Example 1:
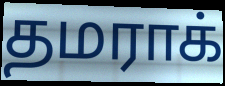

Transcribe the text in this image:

தமராக்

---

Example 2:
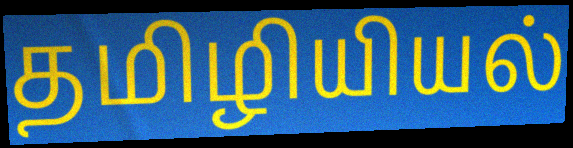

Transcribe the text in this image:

தமிழியியல்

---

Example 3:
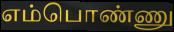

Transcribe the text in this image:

எம்பொண்ணு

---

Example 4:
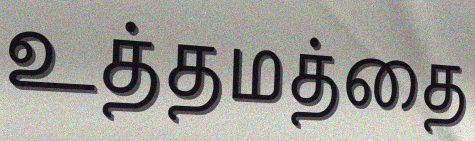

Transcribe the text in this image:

உத்தமத்தை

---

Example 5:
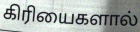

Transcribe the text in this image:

கிரியைகளால்